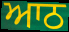
ਆਠ